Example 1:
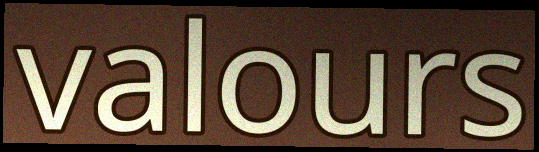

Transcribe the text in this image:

valours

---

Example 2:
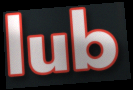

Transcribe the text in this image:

lub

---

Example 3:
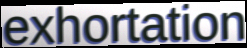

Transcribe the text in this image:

exhortation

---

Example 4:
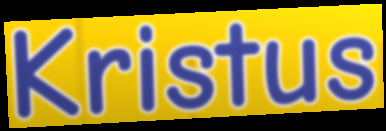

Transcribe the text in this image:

Kristus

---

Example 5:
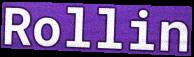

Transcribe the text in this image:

Rollin